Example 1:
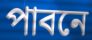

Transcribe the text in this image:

পাবনে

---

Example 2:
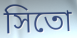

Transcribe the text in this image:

সিতো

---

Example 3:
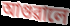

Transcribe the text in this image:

আগুৱালে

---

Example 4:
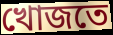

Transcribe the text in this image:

খোজতে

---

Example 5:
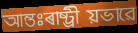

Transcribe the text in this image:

আন্তঃৰাষ্ট্ৰীয়ভাৱে